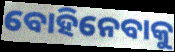
ବୋହିନେବାକୁ